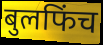
बुलफिंच